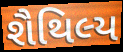
શૈથિલ્ય